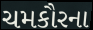
ચમકૌરના